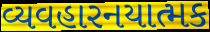
વ્યવહારનયાત્મક